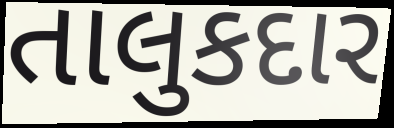
તાલુકદાર